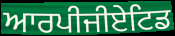
ਆਰਪੀਜੀਏਟਿਡ